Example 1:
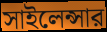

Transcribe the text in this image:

সাইলেন্সার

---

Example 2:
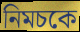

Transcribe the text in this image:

নিমচকে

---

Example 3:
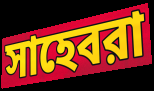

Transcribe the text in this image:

সাহেবরা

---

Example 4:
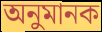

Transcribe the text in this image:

অনুমানক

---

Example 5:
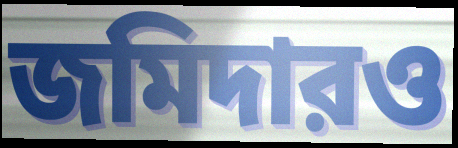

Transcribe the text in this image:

জমিদারও